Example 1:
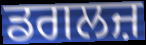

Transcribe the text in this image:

ਡਗਲਜ਼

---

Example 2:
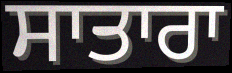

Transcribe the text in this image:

ਸਾਤਾਰਾ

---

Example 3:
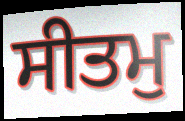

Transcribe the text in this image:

ਸੀਤਮੁ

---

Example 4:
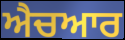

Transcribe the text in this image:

ਐਚਆਰ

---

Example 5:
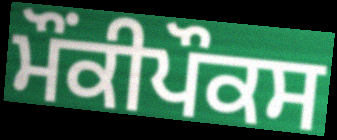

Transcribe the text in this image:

ਮੌਂਕੀਪੌਕਸ